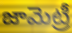
జామెట్రీ